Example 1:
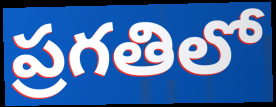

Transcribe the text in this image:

ప్రగతిలో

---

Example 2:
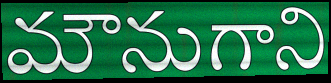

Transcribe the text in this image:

మౌనుగాని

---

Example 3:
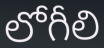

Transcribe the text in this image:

లోగీలి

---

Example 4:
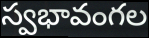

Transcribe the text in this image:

స్వభావంగల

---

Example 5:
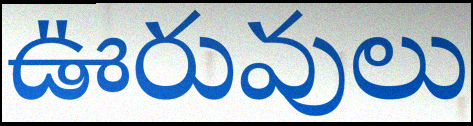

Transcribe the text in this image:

ఊరువులు